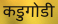
कडुगोडी